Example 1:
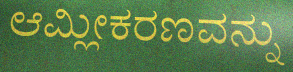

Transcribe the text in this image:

ಆಮ್ಲೀಕರಣವನ್ನು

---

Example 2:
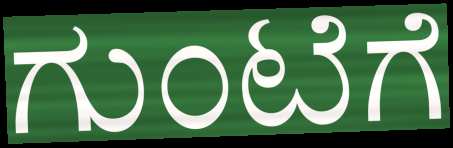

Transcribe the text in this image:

ಗುಂಟೆಗೆ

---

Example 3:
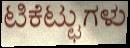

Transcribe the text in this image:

ಟಿಕೆಟ್ಟುಗಳು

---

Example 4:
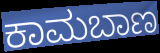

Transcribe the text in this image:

ಕಾಮಬಾಣ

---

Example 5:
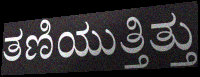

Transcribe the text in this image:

ತಣಿಯುತ್ತಿತ್ತು